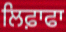
ਲਿਫ਼ਾਫਾ